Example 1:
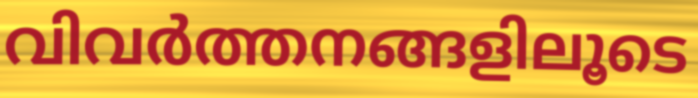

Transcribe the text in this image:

വിവർത്തനങ്ങളിലൂടെ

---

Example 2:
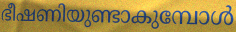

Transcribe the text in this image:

ഭീഷണിയുണ്ടാകുമ്പോൾ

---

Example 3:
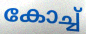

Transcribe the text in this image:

കോച്ച്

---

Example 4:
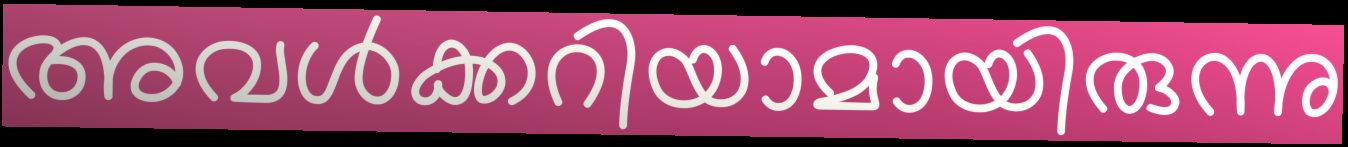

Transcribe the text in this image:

അവൾക്കറിയാമായിരുന്നു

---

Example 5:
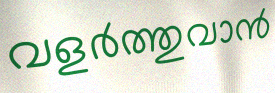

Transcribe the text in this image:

വളർത്തുവാൻ